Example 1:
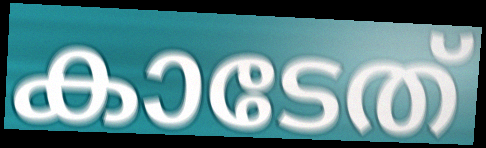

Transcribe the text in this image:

കാടേത്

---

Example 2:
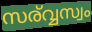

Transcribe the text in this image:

സര്വ്വസ്വം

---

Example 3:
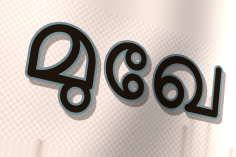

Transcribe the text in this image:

മുഖേ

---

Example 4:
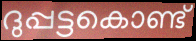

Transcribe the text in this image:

ദുപ്പട്ടകൊണ്ട്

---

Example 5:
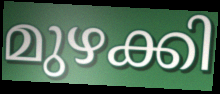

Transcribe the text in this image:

മുഴക്കി